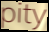
pity